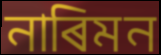
নাৰিমন